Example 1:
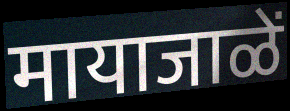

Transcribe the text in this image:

मायाजाळें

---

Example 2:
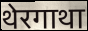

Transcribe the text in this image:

थेरगाथा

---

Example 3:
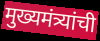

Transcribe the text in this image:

मुख्यमंत्र्यांची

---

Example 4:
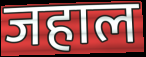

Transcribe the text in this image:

जहाल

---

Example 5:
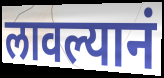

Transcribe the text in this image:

लावल्यानं